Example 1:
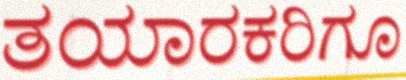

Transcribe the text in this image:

ತಯಾರಕರಿಗೂ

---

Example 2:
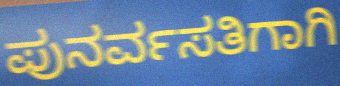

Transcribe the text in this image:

ಪುನರ್ವಸತಿಗಾಗಿ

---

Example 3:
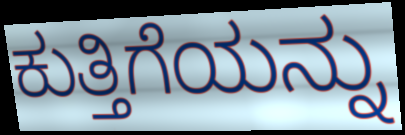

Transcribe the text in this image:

ಕುತ್ತಿಗೆಯನ್ನು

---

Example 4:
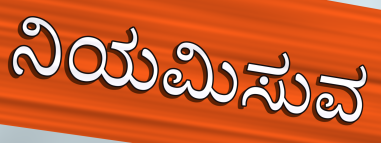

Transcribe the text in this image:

ನಿಯಮಿಸುವ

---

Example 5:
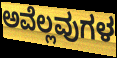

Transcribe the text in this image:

ಅವೆಲ್ಲವುಗಳ